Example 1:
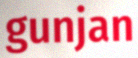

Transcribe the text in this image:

gunjan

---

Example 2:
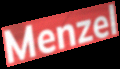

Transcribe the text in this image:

Menzel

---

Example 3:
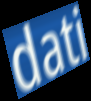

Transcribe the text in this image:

dati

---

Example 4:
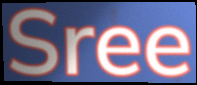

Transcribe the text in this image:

Sree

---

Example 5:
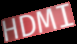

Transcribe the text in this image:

HDMI